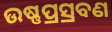
ଉଷ୍ଣପ୍ରସ୍ରବଣ